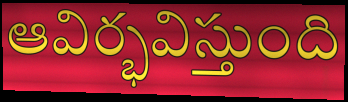
ఆవిర్భవిస్తుంది